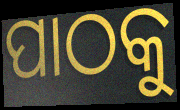
ପାଠକୁ